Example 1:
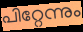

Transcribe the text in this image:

പിറ്റേന്നും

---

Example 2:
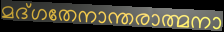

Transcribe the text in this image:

മദ്ഗതേനാന്തരാത്മനാ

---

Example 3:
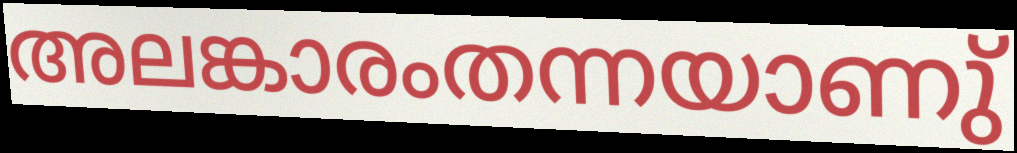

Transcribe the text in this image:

അലങ്കാരംതന്നയാണു്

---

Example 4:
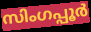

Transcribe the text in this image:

സിംഗപ്പൂർ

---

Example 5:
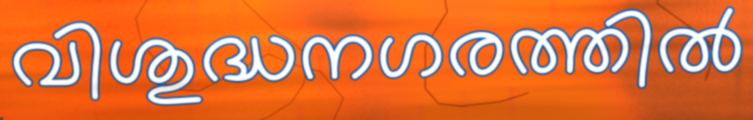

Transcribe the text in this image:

വിശുദ്ധനഗരത്തിൽ